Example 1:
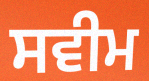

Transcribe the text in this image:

ਸਵੀਮ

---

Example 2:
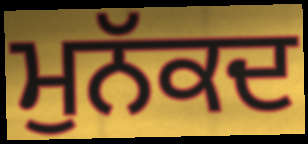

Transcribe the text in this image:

ਮੁਨੱਕਦ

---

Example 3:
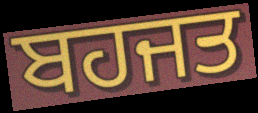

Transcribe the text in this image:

ਬਹਜਤ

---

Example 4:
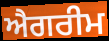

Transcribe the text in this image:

ਐਗਰੀਮ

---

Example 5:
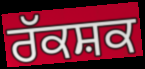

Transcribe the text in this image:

ਰੱਕਸ਼ਕ